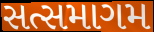
સત્સમાગમ